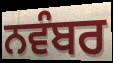
ਨਵੰਬਰ